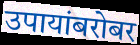
उपायांबरोबर